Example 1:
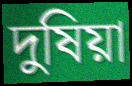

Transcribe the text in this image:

দুষিয়া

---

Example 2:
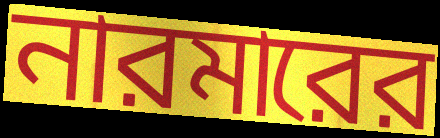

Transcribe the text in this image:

নারমারের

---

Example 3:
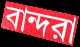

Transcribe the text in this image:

বান্দরা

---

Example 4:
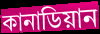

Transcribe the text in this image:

কানাডিয়ান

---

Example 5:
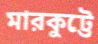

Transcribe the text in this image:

মারকুট্টে